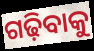
ଗଢ଼ିବାକୁ